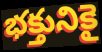
భక్తునికై